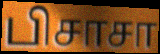
பிசாசா